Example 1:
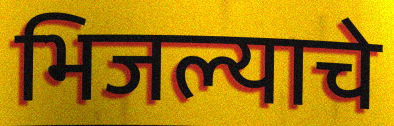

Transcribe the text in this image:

भिजल्याचे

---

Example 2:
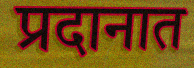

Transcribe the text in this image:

प्रदानात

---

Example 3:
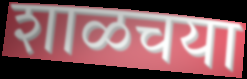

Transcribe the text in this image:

शाळचया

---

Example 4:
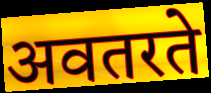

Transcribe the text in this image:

अवतरते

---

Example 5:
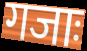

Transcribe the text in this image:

गजाः